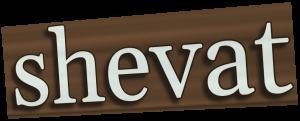
shevat